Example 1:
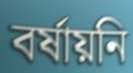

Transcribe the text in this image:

বর্ষায়নি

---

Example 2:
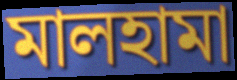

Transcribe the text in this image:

মালহামা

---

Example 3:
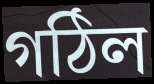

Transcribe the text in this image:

গঠিল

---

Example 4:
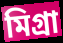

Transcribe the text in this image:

মিগ্রা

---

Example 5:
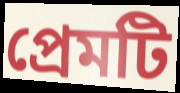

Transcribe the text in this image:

প্রেমটি